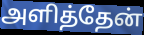
அளித்தேன்